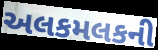
અલકમલકની